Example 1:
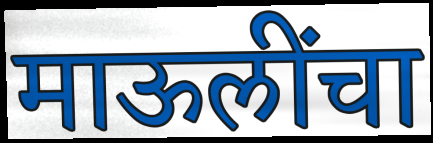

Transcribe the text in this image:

माऊलींचा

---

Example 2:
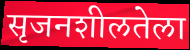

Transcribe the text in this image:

सृजनशीलतेला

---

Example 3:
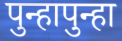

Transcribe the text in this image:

पुन्हापुन्हा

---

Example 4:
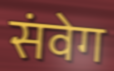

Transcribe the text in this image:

संवेग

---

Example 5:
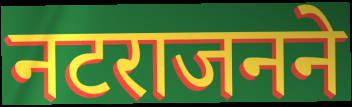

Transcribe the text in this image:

नटराजनने